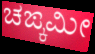
ಚಙ್ಕಮೀ